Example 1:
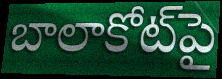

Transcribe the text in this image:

బాలాకోట్‌పై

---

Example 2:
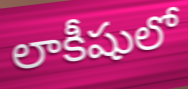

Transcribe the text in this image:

లాకీషులో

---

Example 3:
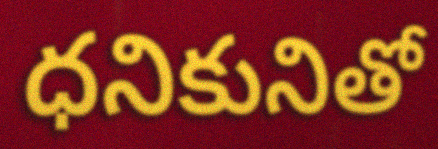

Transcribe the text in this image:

ధనికునితో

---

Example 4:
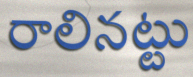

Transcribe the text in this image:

రాలినట్టు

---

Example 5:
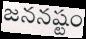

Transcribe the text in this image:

జననష్టం